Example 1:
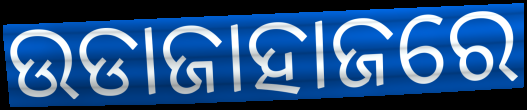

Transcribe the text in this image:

ଉଡାଜାହାଜରେ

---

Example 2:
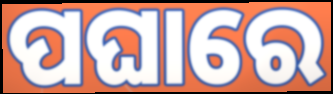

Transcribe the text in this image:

ପଘାରେ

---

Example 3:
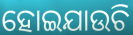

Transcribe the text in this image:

ହୋଇଯାଉଚି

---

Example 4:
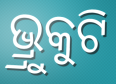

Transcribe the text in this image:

ଭ୍ର୍ରୁକୁଟି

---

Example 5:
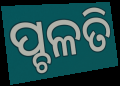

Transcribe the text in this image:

ପ୍ଚଳତି